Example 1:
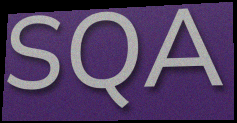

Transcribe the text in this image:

SQA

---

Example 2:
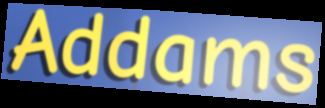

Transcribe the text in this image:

Addams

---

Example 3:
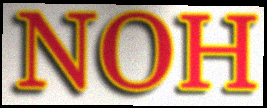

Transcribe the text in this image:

NOH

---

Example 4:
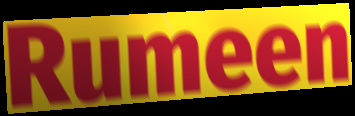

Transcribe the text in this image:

Rumeen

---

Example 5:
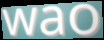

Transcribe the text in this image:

wao